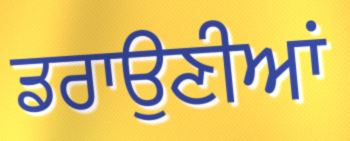
ਡਰਾਉਣੀਆਂ